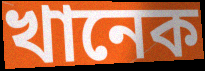
খানেক